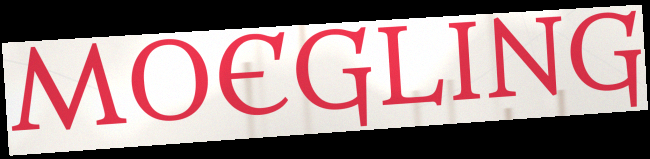
MOEGLING